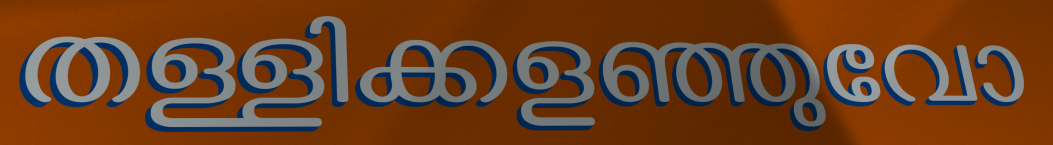
തള്ളിക്കളഞ്ഞുവോ